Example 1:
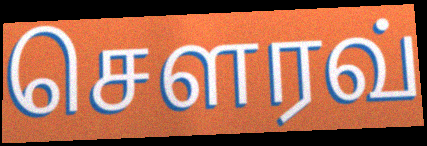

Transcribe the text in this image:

சௌரவ்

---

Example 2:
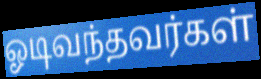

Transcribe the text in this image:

ஓடிவந்தவர்கள்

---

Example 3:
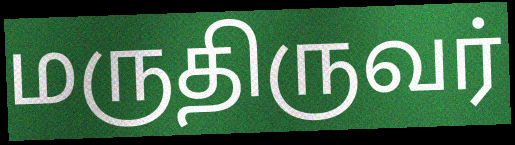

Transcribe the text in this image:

மருதிருவர்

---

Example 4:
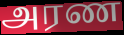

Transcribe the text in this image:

அரண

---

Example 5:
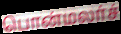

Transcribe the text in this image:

பொன்மலர்ச்